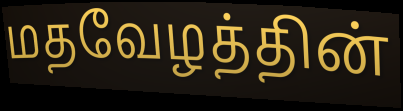
மதவேழத்தின்